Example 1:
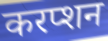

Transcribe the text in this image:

करप्शन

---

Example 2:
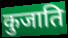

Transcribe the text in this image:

कुजाति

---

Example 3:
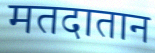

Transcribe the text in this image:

मतदातान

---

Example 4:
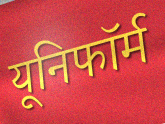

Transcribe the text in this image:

यूनिफॉर्म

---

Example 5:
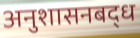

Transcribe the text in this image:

अनुशासनबद्ध